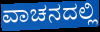
ವಾಚನದಲ್ಲಿ